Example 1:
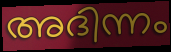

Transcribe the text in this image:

അദിന്നം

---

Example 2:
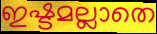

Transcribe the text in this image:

ഇഷ്ടമല്ലാതെ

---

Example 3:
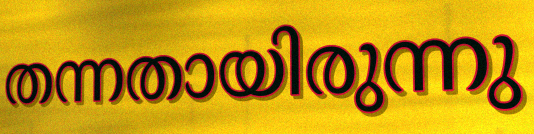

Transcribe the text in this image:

തന്നതായിരുന്നു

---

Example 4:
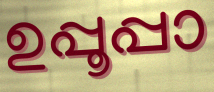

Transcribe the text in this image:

ഉപ്പൂപ്പാ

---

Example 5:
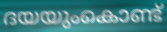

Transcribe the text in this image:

ദയയുംകൊണ്ട്